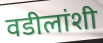
वडीलांशी